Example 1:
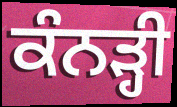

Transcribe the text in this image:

ਕੰਨੜ੍ਹੀ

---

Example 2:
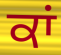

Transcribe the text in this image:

ਕਾਂ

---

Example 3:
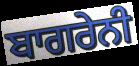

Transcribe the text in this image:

ਬਾਗਰੇਨੀ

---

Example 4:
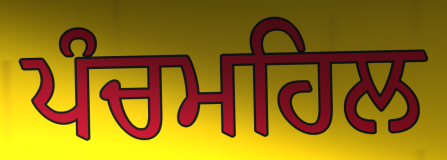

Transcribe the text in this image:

ਪੰਚਮਹਿਲ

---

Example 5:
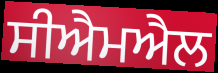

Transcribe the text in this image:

ਸੀਐਮਐਲ